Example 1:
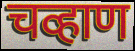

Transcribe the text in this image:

चव्हाण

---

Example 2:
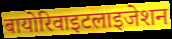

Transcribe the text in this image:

बायोरिवाइटलाइजेशन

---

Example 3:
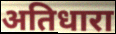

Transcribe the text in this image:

अतिधारा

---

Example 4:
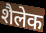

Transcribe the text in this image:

शैलेक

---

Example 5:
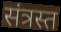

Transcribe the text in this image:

संत्रस्त